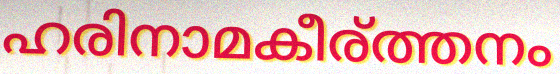
ഹരിനാമകീര്ത്തനം